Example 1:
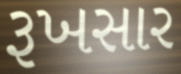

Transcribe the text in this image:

રૂખસાર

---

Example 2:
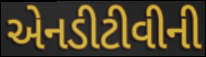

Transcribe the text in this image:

એનડીટીવીની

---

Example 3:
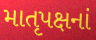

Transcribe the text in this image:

માતૃપક્ષનાં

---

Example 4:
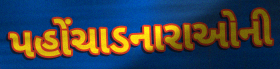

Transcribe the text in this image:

પહોંચાડનારાઓની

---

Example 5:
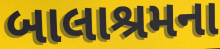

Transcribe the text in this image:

બાલાશ્રમના